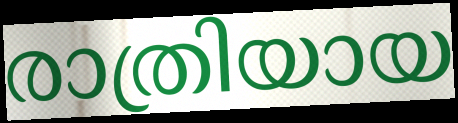
രാത്രിയായ